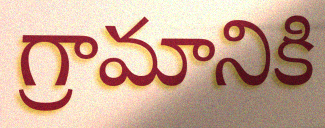
గ్రామానికి